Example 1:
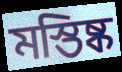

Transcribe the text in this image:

মস্তিষ্ক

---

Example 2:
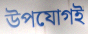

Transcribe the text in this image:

উপযোগই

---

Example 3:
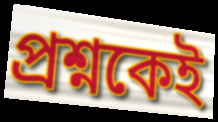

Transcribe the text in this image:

প্রশ্নকেই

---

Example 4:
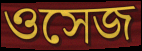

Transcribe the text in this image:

ওসেজ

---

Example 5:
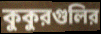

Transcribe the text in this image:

কুকুরগুলির